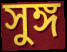
সুঙ্গ